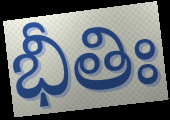
భీతిః